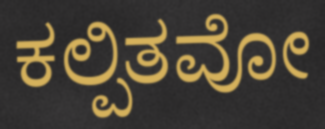
ಕಲ್ಪಿತವೋ